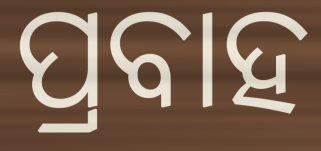
ପ୍ରବାହ